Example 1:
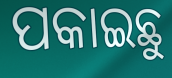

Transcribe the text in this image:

ପକାଇଛୁ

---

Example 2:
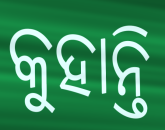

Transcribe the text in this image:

କୁହାନ୍ତି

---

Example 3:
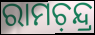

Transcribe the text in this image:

ରାମଚ଼ନ୍ଦ୍ର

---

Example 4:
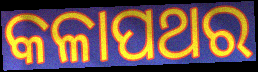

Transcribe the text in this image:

କଳାପଥର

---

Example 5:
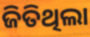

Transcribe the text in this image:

ଜିତିଥିଲା